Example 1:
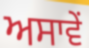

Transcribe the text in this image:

ਅਸਾਵੇਂ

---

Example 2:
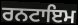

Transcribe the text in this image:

ਰਨਟਾਇਮ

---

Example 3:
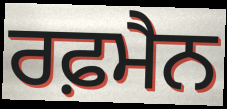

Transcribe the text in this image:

ਰਫ਼ਮੈਨ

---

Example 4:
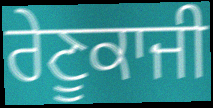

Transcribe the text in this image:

ਰੇਣੂਕਾਜੀ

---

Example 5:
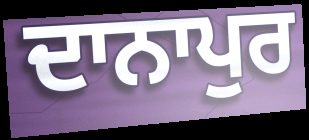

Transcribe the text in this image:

ਦਾਨਾਪੁਰ